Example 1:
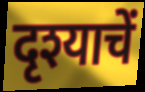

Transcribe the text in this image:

दृश्याचें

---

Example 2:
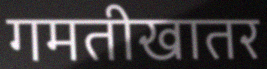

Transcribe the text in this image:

गमतीखातर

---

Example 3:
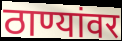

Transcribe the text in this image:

ठाण्यांवर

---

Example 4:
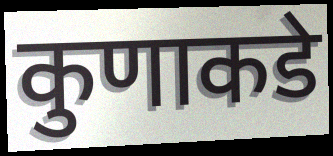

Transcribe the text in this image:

कुणाकडे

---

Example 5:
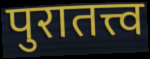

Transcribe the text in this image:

पुरातत्त्व